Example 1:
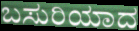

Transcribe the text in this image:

ಬಸುರಿಯಾದ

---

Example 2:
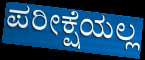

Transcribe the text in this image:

ಪರೀಕ್ಷೆಯಲ್ಲ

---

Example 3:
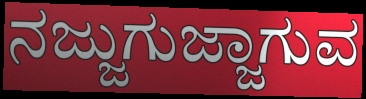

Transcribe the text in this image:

ನಜ್ಜುಗುಜ್ಜಾಗುವ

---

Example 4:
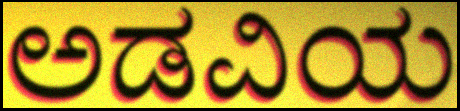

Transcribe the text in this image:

ಅಡವಿಯ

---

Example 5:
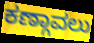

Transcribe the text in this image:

ಕಣ್ಗಾವಲು